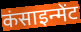
कंसाइन्मेंट